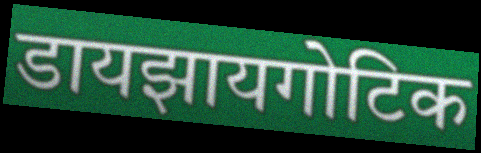
डायझायगोटिक